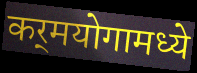
कर्मयोगामध्ये